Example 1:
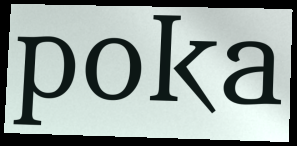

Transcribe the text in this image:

poka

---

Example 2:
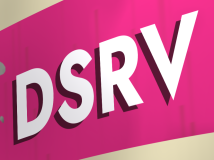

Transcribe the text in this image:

DSRV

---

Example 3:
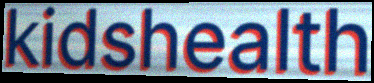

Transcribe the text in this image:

kidshealth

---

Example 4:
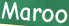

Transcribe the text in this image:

Maroo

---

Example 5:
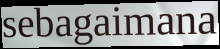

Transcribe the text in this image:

sebagaimana